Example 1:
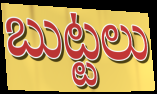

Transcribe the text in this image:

బుట్టలు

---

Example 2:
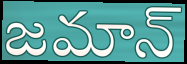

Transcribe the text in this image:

జమాన్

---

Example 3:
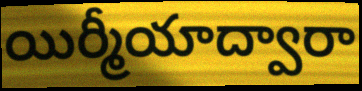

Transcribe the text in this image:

యిర్మీయాద్వారా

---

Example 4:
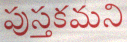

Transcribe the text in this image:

పుస్తకమని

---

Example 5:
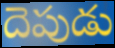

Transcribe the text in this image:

దెపుడు